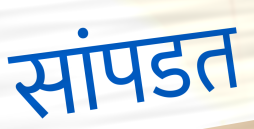
सांपडत